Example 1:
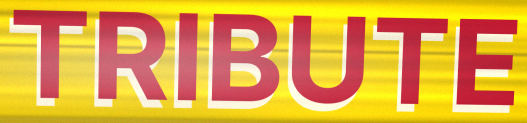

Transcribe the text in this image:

TRIBUTE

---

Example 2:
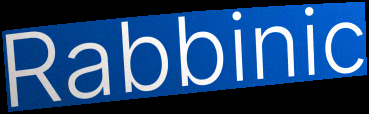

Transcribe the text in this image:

Rabbinic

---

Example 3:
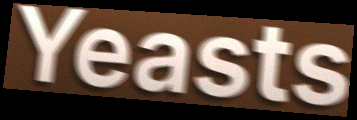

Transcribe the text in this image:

Yeasts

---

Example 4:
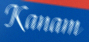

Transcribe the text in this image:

Kanam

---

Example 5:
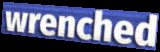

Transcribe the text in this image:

wrenched